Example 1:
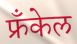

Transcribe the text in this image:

फ्रँकेल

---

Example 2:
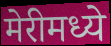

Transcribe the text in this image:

मेरीमध्ये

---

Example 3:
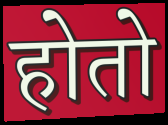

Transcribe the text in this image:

होतो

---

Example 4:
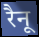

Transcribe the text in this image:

रैनू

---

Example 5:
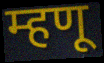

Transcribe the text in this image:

म्हणू